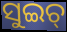
ସୁଇଚ୍